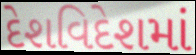
દેશવિદેશમાં